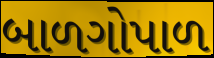
બાળગોપાળ